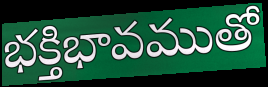
భక్తిభావముతో